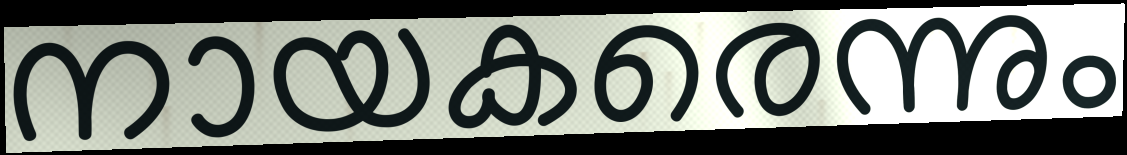
നായകരെന്നും